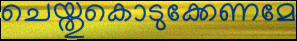
ചെയ്തുകൊടുക്കേണമേ